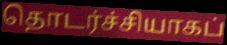
தொடர்ச்சியாகப்